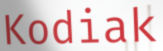
Kodiak